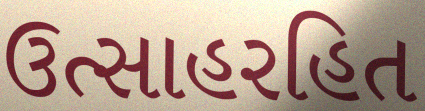
ઉત્સાહરહિત